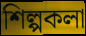
শিল্পকলা